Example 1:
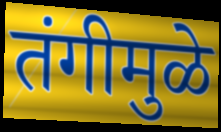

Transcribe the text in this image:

तंगीमुळे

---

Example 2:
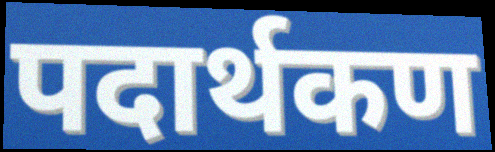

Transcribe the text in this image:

पदार्थकण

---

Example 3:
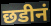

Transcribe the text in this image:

छडीनं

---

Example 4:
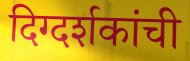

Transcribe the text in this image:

दिग्दर्शकांची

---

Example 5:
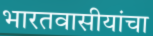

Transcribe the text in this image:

भारतवासीयांचा